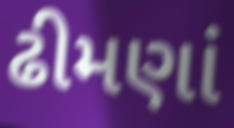
ઢીમણાં